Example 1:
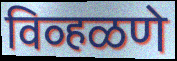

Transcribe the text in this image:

विव्हळणे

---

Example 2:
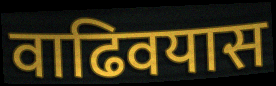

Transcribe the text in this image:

वाढिवयास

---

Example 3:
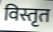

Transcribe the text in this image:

विस्तृत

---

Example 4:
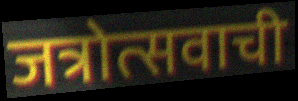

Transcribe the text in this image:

जत्रोत्सवाची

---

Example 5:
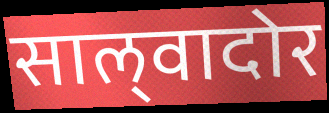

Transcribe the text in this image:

साल्वादोर